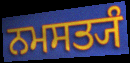
ਨਮਸਤ੍ਯੰ